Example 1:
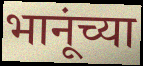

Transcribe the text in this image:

भानूंच्या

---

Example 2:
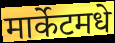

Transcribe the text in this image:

मार्केटमधे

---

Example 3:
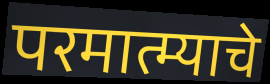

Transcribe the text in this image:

परमात्म्याचे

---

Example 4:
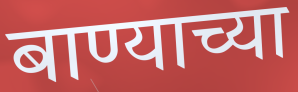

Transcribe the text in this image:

बाण्याच्या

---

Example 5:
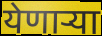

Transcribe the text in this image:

येणार्‍या